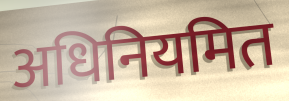
अधिनियमित